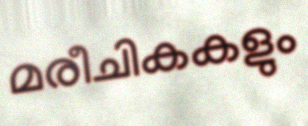
മരീചികകളും